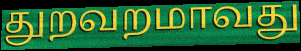
துறவறமாவது